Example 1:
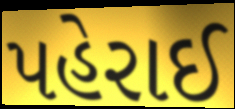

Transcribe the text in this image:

પહેરાઈ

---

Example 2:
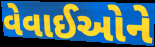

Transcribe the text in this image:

વેવાઈઓને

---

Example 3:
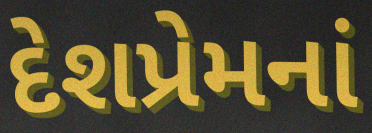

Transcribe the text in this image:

દેશપ્રેમનાં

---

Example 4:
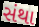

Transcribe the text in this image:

સંથા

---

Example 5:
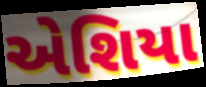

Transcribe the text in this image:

એશિયા